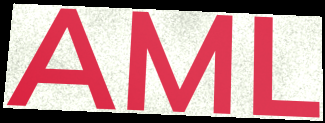
AML